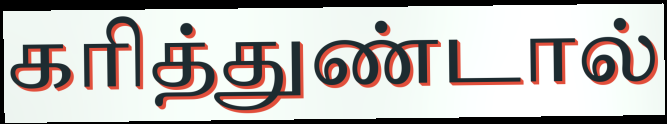
கரித்துண்டால்